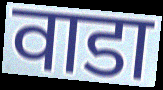
वाडा